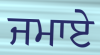
ਜਮਾਏ